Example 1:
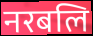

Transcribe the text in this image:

नरबलि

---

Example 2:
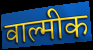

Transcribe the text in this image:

वाल्मीक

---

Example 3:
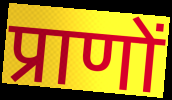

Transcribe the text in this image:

प्राणों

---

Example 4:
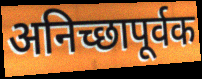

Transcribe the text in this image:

अनिच्छापूर्वक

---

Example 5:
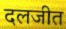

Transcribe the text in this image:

दलजीत